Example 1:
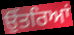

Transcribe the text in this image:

ਉੱਤਰਿਆਂ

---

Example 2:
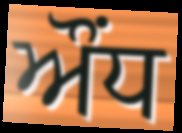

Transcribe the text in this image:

ਔਂਧ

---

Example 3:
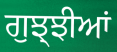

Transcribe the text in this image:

ਗੁਝ੍ਝੀਆਂ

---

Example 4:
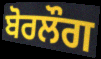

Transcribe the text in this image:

ਬੋਰਲੌਗ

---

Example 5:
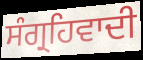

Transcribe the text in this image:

ਸੰਗ੍ਰਹਿਵਾਦੀ